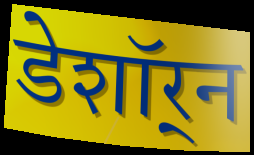
डेशॉर्न